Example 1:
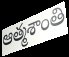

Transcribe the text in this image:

ఆత్మశాంతి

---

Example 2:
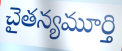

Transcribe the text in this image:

చైతన్యమూర్తి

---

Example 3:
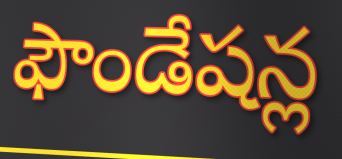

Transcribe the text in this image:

ఫౌండేషన్ల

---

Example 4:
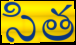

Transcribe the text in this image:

సిత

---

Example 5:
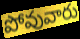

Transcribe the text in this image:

పోవువారు